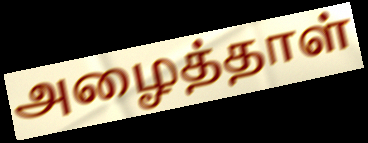
அழைத்தாள்